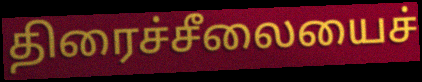
திரைச்சீலையைச்